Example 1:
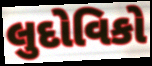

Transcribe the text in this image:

લુદોવિકો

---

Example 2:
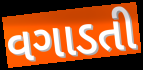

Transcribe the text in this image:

વગાડતી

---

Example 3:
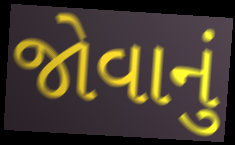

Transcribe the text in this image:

જોવાનું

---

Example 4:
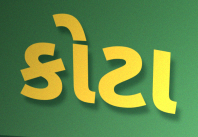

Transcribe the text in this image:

કોટા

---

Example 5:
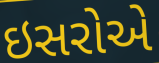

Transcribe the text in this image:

ઇસરોએ